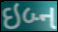
ઇબ્ન